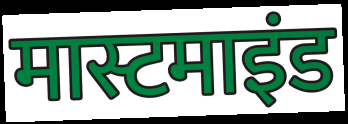
मास्टमाइंड